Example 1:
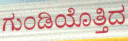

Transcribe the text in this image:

ಗುಂಡಿಯೊತ್ತಿದ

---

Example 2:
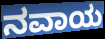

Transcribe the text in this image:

ನವಾಯ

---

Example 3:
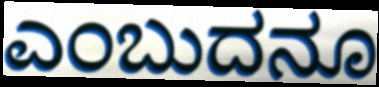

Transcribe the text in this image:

ಎಂಬುದನೂ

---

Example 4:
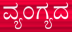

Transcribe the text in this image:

ವ್ಯಂಗ್ಯದ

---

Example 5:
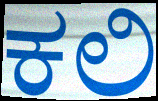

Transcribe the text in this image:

ಕಲಿ